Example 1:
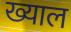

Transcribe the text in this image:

ख्याल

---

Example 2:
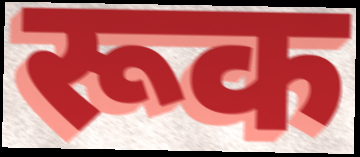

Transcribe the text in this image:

रूक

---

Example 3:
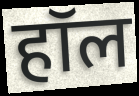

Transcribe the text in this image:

हॉल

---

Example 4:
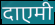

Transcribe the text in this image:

दाएमी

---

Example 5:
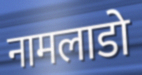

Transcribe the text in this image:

नामलाडो